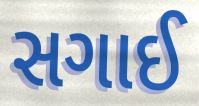
સગાઈ